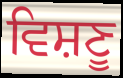
ਵਿਸ਼ਣੂ